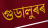
গুডালুৰৰ